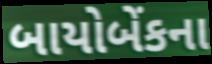
બાયોબેંકના